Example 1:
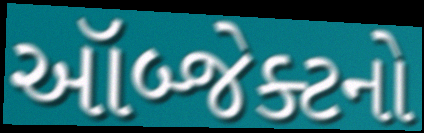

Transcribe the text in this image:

ઑબ્જેક્ટનો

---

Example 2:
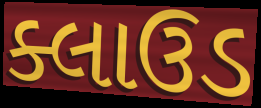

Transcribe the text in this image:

ક્લાઉડ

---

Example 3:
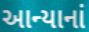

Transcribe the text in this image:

આન્યાનાં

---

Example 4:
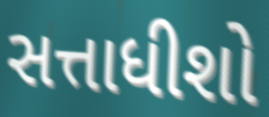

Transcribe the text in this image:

સત્તાધીશો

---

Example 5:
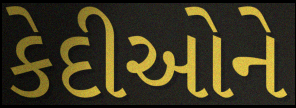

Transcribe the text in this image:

કેદીઓને